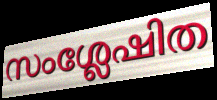
സംശ്ലേഷിത